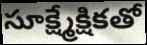
సూక్ష్మేక్షికతో